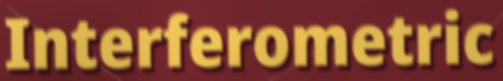
Interferometric